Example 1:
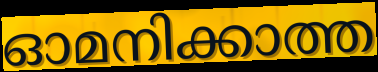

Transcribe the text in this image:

ഓമനിക്കാത്ത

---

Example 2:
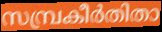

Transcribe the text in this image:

സമ്പ്രകീർതിതാ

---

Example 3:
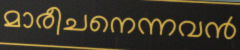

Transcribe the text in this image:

മാരീചനെന്നവൻ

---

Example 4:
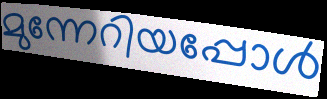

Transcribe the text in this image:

മുന്നേറിയപ്പോൾ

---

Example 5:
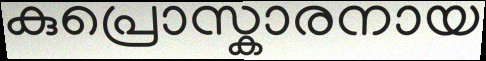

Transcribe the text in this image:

കുപ്രൊസ്കാരനായ